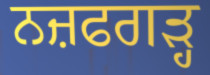
ਨਜ਼ਫਗੜ੍ਹ